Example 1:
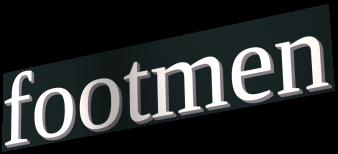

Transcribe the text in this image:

footmen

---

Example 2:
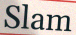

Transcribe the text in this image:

Slam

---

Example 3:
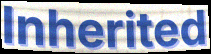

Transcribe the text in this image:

Inherited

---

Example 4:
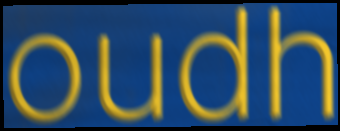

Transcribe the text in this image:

oudh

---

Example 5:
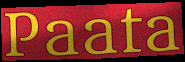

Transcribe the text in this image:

Paata